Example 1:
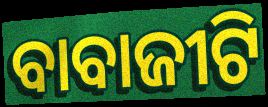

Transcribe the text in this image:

ବାବାଜୀଟି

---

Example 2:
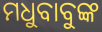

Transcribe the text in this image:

ମଧୁବାବୁଙ୍କ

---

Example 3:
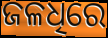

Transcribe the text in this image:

ଜଳଧିରେ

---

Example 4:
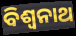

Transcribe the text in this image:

ବିଶ୍ଵନାଥ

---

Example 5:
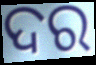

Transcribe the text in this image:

ଦର